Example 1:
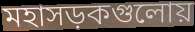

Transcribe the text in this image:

মহাসড়কগুলোয়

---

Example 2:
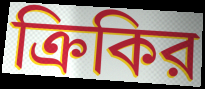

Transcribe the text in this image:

ক্রিকির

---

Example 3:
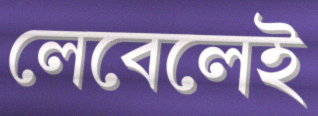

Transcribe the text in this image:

লেবেলেই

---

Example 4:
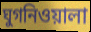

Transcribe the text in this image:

ঘুগনিওয়ালা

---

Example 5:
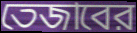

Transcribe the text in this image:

তেজাবের